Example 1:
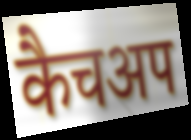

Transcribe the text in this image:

कैचअप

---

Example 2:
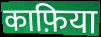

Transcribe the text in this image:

काफ़िया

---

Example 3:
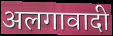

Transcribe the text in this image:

अलगावादी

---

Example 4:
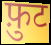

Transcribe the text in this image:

फ़ुट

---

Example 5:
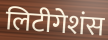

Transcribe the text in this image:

लिटीगेशंस